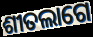
ଶୀତଲାଗେ